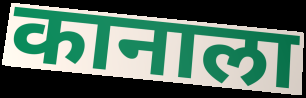
कानाला